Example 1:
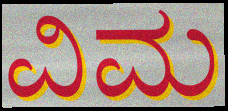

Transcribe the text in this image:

ವಿಮ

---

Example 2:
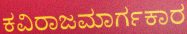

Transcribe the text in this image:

ಕವಿರಾಜಮಾರ್ಗಕಾರ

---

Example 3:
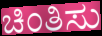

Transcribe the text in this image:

ಚಿಂತಿಸು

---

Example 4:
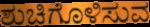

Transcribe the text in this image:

ಶುಚಿಗೊಳಿಸುವ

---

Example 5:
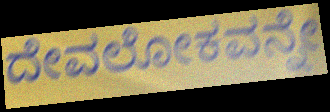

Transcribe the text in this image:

ದೇವಲೋಕವನ್ನೇ